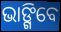
ଭାଙ୍ଗିବେ